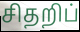
சிதறிப்